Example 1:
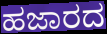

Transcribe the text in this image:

ಹಜಾರದ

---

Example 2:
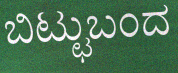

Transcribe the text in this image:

ಬಿಟ್ಟುಬಂದ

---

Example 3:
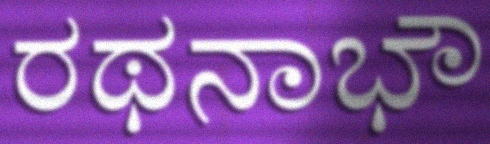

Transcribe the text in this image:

ರಥನಾಭೌ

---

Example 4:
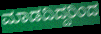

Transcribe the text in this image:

ಮಾಡದಿದ್ದರಿಂದ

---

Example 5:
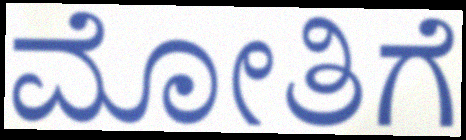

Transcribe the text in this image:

ಮೋತಿಗೆ